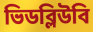
ভিডব্লিউবি